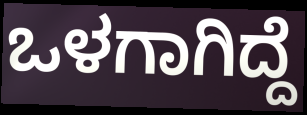
ಒಳಗಾಗಿದ್ದೆ